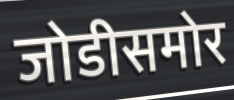
जोडीसमोर